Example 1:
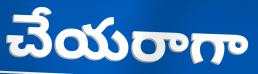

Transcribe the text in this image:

చేయరాగా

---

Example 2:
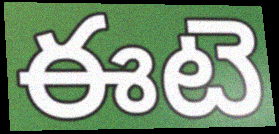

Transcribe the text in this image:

ఈటె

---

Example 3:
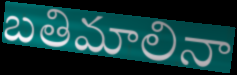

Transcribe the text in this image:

బతిమాలినా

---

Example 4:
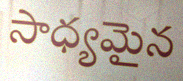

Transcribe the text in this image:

సాధ్యమైన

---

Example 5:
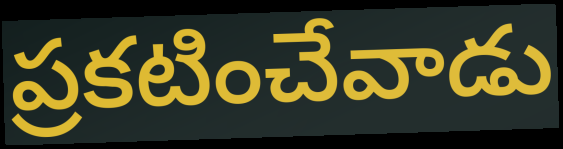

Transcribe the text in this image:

ప్రకటించేవాడు